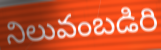
నిలువంబడిరి